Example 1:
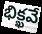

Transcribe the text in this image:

భిక్ఖవే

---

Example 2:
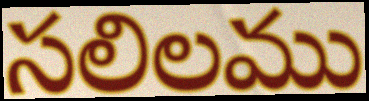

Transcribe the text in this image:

సలిలము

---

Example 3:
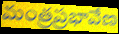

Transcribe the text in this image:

మంత్రప్రభావేణ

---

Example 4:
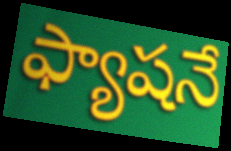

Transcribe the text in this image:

ఫ్యాషనే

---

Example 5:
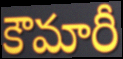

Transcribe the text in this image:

కౌమారీ